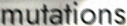
mutations